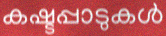
കഷ്ടപ്പാടുകൾ